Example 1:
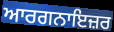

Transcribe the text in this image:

ਆਰਗਨਾਇਜ਼ਰ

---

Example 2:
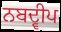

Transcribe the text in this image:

ਨਬਦ੍ਵੀਪ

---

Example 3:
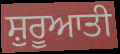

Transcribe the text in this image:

ਸ਼ੁਰੂਆਤੀ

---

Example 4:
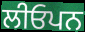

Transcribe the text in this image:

ਲੀਓਪਨ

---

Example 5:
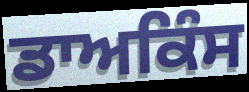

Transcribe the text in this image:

ਡਾਅਕਿੰਸ